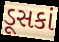
ડૂસકાં